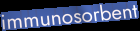
immunosorbent